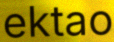
ektao